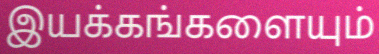
இயக்கங்களையும்